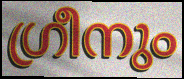
ഗ്രീനും